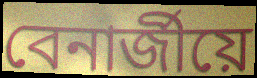
বেনাৰ্জীয়ে